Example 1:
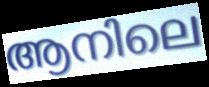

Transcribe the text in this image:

ആനിലെ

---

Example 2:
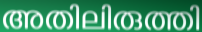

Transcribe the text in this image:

അതിലിരുത്തി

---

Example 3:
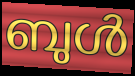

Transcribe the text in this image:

ബുൾ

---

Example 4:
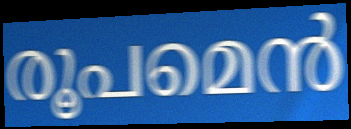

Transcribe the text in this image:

രൂപമെൻ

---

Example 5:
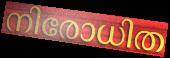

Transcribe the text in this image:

നിരോധിത